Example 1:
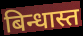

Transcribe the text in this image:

बिन्धास्त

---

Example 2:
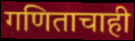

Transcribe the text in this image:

गणिताचाही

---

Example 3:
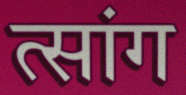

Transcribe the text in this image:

त्सांग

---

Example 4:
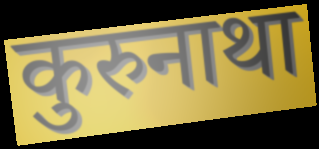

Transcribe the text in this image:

कुरुनाथा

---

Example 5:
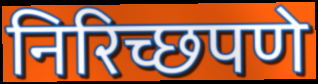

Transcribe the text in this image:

निरिच्छपणे